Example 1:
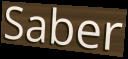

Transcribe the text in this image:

Saber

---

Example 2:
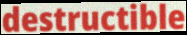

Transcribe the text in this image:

destructible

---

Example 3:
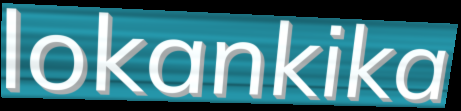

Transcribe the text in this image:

lokankika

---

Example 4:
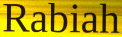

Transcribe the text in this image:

Rabiah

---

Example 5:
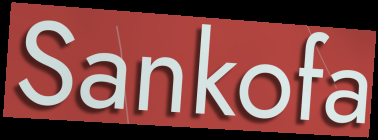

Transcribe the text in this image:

Sankofa